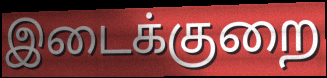
இடைக்குறை